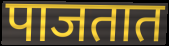
पाजतात